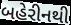
બહેરીનથી